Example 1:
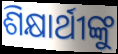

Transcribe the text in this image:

ଶିକ୍ଷାର୍ଥୀଙ୍କୁ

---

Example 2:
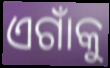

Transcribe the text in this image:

ଏଗାଁକୁ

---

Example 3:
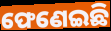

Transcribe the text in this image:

ଫେଣେଇଛି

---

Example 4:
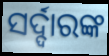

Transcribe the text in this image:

ସର୍ଦ୍ଦାରଙ୍କ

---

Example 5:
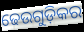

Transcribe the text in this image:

ଢେଉଗୁଡ଼ିକର